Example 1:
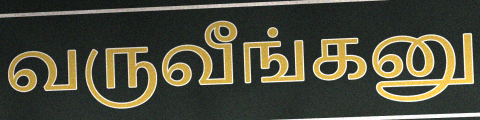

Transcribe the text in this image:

வருவீங்கனு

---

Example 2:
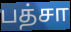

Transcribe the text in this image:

பத்சா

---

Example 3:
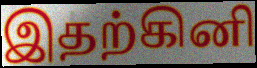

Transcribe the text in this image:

இதற்கினி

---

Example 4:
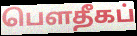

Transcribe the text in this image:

பௌதீகப்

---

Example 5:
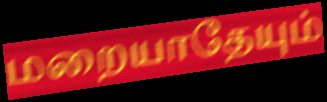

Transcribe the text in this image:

மறையாதேயும்